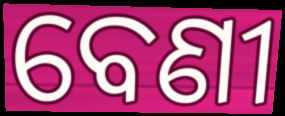
ବେଣୀ